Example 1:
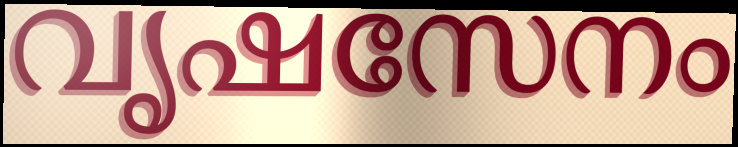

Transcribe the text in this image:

വൃഷസേനം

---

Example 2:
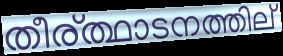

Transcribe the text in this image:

തീര്ത്ഥാടനത്തില്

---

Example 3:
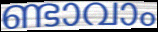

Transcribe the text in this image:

ണ്ടാവാം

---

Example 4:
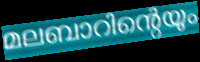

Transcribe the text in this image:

മലബാറിന്റെയും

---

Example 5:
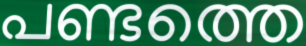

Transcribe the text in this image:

പണ്ടത്തെ